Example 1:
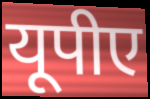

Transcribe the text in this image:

यूपीए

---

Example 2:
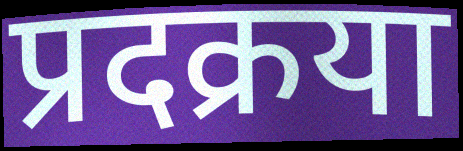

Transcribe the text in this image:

प्रदक्रया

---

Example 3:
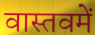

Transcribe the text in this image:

वास्तवमें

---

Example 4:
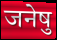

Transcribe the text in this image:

जनेषु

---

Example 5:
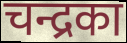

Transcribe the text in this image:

चन्द्रका